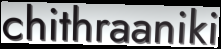
chithraaniki